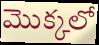
మొక్కలో